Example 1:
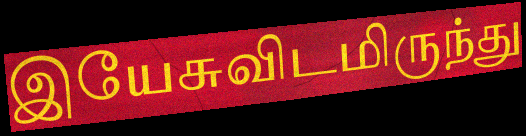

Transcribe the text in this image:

இயேசுவிடமிருந்து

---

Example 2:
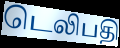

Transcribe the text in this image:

டெலிபதி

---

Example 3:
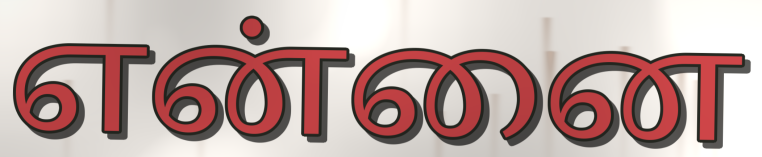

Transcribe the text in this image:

என்னை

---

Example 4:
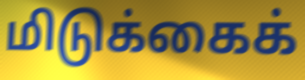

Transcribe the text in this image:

மிடுக்கைக்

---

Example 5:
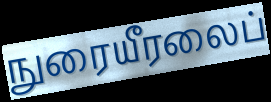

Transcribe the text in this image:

நுரையீரலைப்